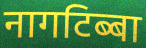
नागटिब्बा